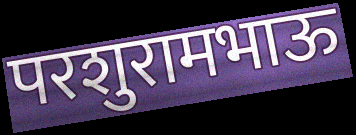
परशुरामभाऊ